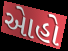
એાહો